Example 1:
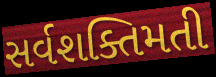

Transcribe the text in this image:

સર્વશક્તિમતી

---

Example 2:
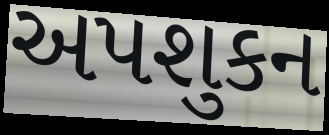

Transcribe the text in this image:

અપશુકન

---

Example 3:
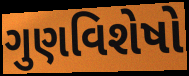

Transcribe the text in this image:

ગુણવિશેષો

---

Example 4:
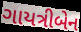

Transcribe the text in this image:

ગાયત્રીબેન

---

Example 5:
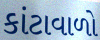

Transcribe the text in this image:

કાંટાવાળો